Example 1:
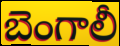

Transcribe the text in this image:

బెంగాలీ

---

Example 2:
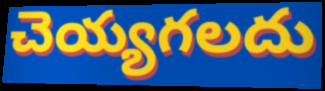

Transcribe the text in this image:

చెయ్యగలదు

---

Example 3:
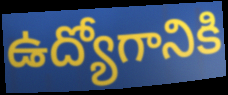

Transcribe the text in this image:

ఉద్యోగానికి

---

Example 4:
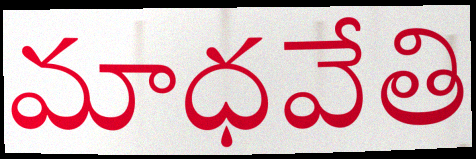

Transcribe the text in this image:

మాధవేతి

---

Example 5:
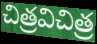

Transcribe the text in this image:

చిత్రవిచిత్ర